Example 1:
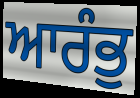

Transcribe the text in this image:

ਆਰੰਭੁ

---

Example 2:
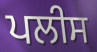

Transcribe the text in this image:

ਪਲੀਸ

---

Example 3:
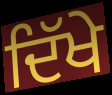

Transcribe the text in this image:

ਦਿੱਖੇ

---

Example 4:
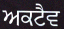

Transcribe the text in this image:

ਅਕਟੈਵ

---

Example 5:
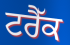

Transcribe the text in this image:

ਟਰੈੱਕ